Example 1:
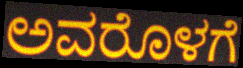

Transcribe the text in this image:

ಅವರೊಳಗೆ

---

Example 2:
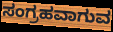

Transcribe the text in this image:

ಸಂಗ್ರಹವಾಗುವ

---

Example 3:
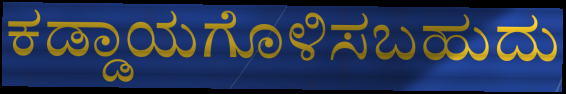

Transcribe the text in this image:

ಕಡ್ಡಾಯಗೊಳಿಸಬಹುದು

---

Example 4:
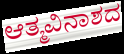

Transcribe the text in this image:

ಆತ್ಮವಿನಾಶದ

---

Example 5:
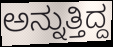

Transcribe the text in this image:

ಅನ್ನುತ್ತಿದ್ದ